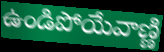
ఉండిపోయేవాణ్ణి